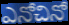
ఎనోచినో